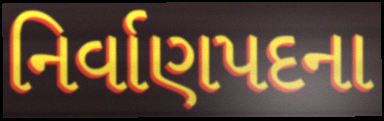
નિર્વાણપદના